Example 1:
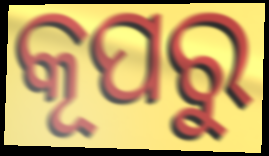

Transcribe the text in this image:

କୂପରୁ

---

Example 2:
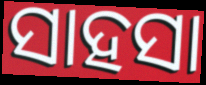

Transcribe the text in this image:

ସାହସା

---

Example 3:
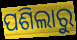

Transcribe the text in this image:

ପଶିଲାରୁ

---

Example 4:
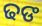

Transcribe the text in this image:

ଢଙ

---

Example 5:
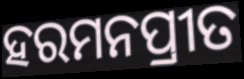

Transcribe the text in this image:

ହରମନପ୍ରୀତ